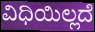
ವಿಧಿಯಿಲ್ಲದೆ